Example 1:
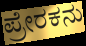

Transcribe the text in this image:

ಪ್ರೇರಕನು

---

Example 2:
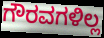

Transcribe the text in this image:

ಗೌರವಗಳಿಲ್ಲ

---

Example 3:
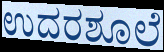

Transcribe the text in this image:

ಉದರಶೂಲೆ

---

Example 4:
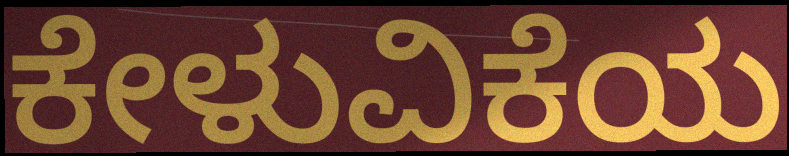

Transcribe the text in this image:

ಕೇಳುವಿಕೆಯ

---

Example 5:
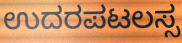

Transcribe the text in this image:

ಉದರಪಟಲಸ್ಸ